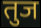
तुज